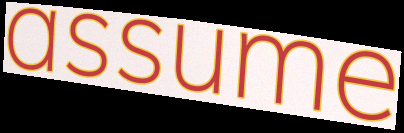
assume